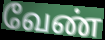
வேண்